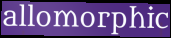
allomorphic